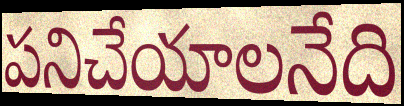
పనిచేయాలనేది